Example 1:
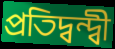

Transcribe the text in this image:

প্ৰতিদ্বন্দ্বী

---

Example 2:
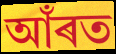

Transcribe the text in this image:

আঁৰত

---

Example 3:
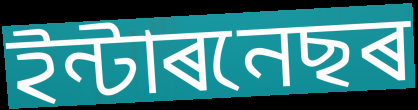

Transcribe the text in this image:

ইন্টাৰনেছৰ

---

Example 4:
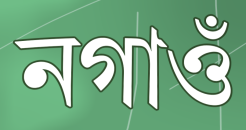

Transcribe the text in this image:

নগাওঁ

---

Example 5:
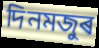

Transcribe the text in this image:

দিনমজুৰ